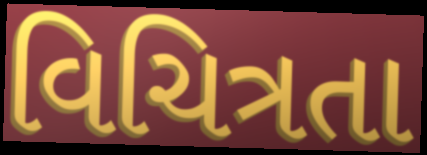
વિચિત્રતા